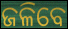
ଜଳିବେ